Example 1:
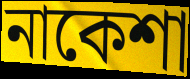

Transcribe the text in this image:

নাকেশা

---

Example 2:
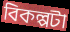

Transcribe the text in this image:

বিকল্পটা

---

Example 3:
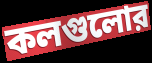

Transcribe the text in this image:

কলগুলোর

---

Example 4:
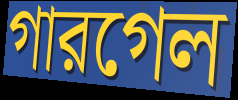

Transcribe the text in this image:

গারগেল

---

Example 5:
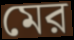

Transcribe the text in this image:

মের